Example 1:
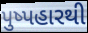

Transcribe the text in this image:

પુષ્પહારથી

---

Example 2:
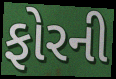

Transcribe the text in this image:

ફોરની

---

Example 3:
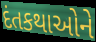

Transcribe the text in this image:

દંતકથાઓને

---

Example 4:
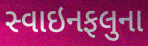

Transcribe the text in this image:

સ્વાઇનફલુના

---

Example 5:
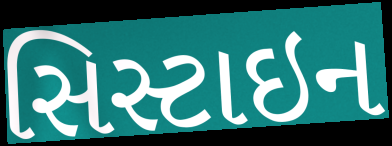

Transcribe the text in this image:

સિસ્ટાઇન